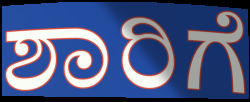
ಶಾರಿಗೆ